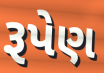
રૂપેણ